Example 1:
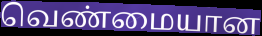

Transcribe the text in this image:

வெண்மையான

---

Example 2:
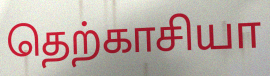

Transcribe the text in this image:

தெற்காசியா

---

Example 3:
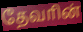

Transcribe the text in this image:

தேவரின்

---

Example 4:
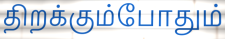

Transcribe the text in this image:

திறக்கும்போதும்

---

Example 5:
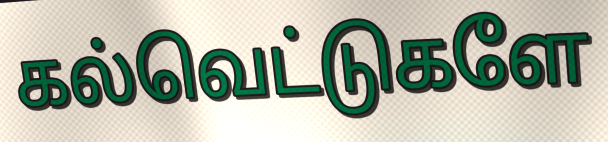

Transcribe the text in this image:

கல்வெட்டுகளே